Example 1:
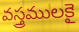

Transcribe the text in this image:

వస్త్రములకై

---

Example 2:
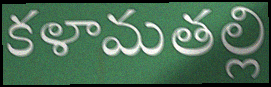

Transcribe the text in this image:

కళామతల్లి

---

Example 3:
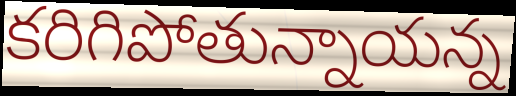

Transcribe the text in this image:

కరిగిపోతున్నాయన్న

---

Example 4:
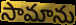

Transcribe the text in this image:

సామాను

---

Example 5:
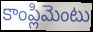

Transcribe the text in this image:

కాంప్లిమెంటు